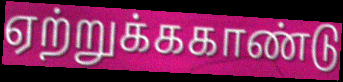
ஏற்றுக்ககாண்டு